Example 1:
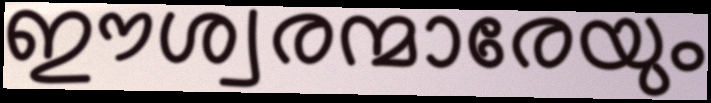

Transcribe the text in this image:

ഈശ്വരന്മാരേയും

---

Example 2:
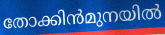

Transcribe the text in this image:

തോക്കിൻമുനയിൽ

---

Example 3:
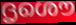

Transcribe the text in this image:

ദൃശൌ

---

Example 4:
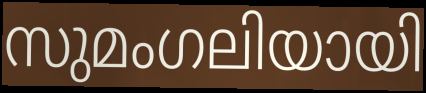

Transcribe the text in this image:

സുമംഗലിയായി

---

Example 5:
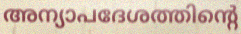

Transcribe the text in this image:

അന്യാപദേശത്തിന്റെ